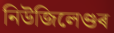
নিউজিলেণ্ডৰ